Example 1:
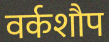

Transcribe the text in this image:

वर्कशौप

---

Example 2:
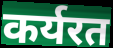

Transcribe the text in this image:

कर्यरत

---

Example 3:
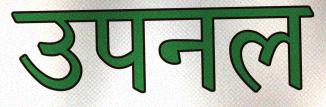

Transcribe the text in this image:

उपनल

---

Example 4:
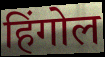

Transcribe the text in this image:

हिंगोल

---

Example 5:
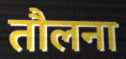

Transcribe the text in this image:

तौलना